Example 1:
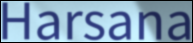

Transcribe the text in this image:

Harsana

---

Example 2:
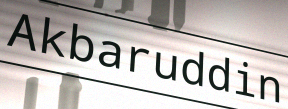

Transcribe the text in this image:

Akbaruddin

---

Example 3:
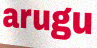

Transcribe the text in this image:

arugu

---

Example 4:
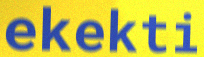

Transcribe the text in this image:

ekekti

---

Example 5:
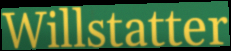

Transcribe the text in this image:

Willstatter